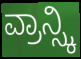
ವ್ರಾನ್ಸ್ಕಿ